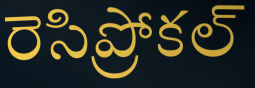
రెసిప్రోకల్